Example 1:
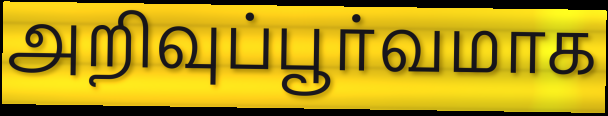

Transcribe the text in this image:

அறிவுப்பூர்வமாக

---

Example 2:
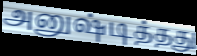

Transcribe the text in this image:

அனுஷ்டித்தது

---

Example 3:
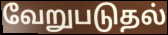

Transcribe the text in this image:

வேறுபடுதல்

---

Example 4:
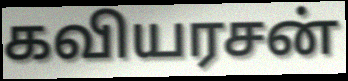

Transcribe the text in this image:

கவியரசன்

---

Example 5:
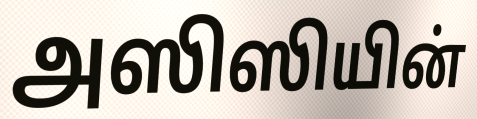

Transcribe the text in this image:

அஸிஸியின்